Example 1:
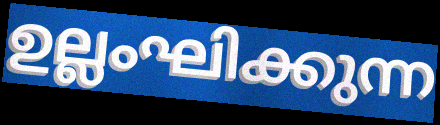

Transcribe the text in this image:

ഉല്ലംഘിക്കുന്ന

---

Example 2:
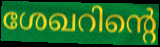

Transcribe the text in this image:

ശേഖറിന്റെ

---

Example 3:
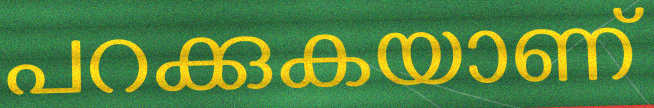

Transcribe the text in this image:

പറക്കുകയാണ്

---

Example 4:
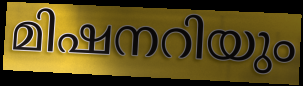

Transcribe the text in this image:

മിഷനറിയും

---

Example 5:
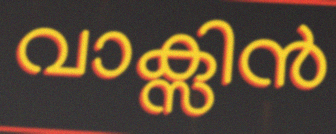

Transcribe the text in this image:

വാക്സിൻ